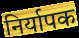
निर्यापक